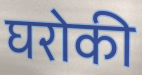
घरोकी